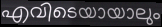
എവിടെയായാലും